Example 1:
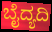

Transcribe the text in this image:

ಬೈದ್ಯದಿ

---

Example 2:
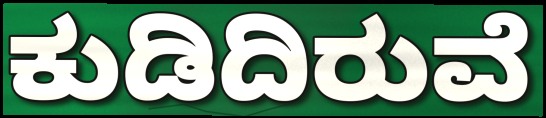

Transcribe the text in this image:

ಕುಡಿದಿರುವೆ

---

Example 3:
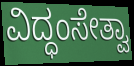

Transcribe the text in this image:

ವಿದ್ಧಂಸೇತ್ವಾ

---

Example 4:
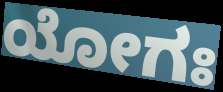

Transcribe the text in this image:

ಯೋಗಃ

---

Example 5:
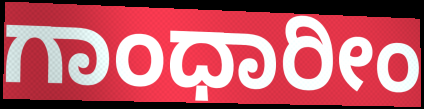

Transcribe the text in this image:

ಗಾಂಧಾರೀಂ